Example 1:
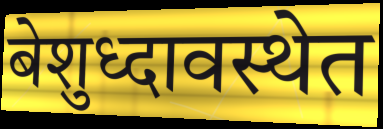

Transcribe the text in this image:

बेशुध्दावस्थेत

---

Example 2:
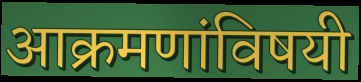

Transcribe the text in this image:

आक्रमणांविषयी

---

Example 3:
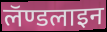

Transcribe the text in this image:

लॅण्डलाइन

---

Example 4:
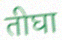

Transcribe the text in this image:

तीघा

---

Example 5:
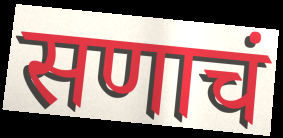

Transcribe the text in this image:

सणाचं